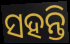
ସହନ୍ତି